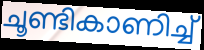
ചൂണ്ടികാണിച്ച്